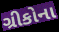
ગ્રીકોના